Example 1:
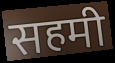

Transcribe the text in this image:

सहमी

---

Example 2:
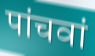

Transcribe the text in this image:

पांचवां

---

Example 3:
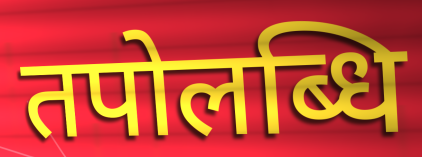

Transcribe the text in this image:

तपोलब्धि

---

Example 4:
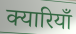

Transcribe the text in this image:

क्यारियाँ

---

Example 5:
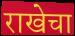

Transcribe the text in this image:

राखेचा